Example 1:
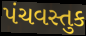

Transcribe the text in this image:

પંચવસ્તુક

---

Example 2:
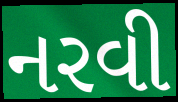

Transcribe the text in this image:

નરવી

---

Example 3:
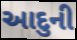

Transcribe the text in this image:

આદુની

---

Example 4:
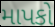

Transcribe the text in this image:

માપકો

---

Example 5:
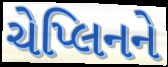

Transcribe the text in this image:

ચેપ્લિનને